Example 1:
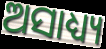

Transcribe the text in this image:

ଅସାଧ୍ୟ୍ୟ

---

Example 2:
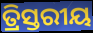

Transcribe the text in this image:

ତ୍ରିସ୍ତରୀୟ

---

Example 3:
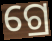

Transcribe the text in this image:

ଗ୍ରେ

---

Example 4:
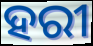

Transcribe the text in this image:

ହରୀ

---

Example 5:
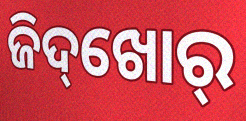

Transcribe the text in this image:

ଜିଦ୍‌ଖୋର୍